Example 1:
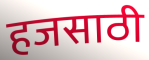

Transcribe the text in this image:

हजसाठी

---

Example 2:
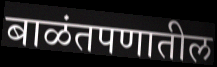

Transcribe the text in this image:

बाळंतपणातील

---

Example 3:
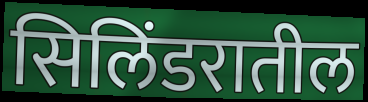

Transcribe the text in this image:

सिलिंडरातील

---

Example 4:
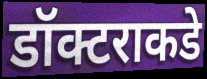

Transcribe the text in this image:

डॉक्टराकडे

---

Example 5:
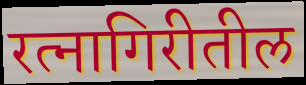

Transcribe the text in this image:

रत्नागिरीतील